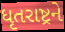
ધૃતરાષ્ટ્રને